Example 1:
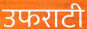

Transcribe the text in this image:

उफराटी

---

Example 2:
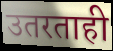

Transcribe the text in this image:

उतरताही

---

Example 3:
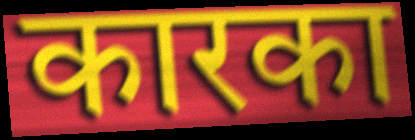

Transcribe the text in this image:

कारका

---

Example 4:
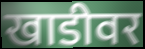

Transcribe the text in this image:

खाडीवर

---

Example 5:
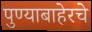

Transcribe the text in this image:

पुण्याबाहेरचे